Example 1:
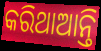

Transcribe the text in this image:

କରିଥାଆନ୍ତି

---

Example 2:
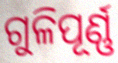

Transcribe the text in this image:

ଗୁଳିପୂର୍ଣ୍ଣ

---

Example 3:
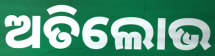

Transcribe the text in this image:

ଅତିଲୋଭ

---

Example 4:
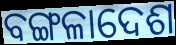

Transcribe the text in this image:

ବଙ୍ଗଳାଦେଶ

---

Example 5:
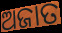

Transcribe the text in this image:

ଅଜାତ